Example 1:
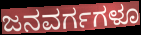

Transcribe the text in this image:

ಜನವರ್ಗಗಳೂ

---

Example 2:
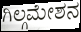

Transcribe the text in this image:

ಗಿಲ್ಗಮೇಶನ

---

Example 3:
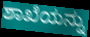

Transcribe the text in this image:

ಶಾಖೆಯನ್ನು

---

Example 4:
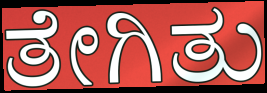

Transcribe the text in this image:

ತೇಗಿತು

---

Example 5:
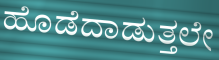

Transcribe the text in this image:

ಹೊಡೆದಾಡುತ್ತಲೇ